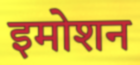
इमोशन